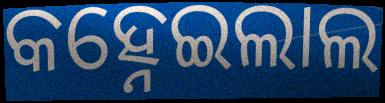
କହ୍ନେଇଲାଲ